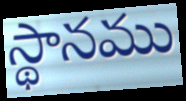
స్థానము